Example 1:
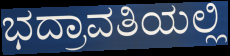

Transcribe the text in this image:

ಭದ್ರಾವತಿಯಲ್ಲಿ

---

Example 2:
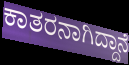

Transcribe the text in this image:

ಕಾತರನಾಗಿದ್ದಾನೆ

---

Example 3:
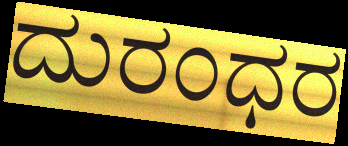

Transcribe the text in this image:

ದುರಂಧರ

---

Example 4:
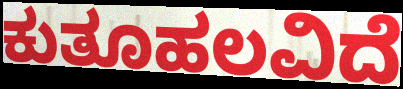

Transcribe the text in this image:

ಕುತೂಹಲವಿದೆ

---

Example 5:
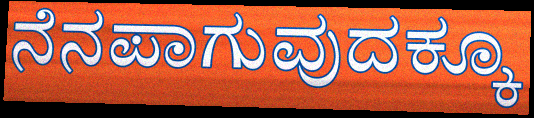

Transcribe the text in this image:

ನೆನಪಾಗುವುದಕ್ಕೂ